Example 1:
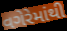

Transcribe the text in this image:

વગેરેમાંથી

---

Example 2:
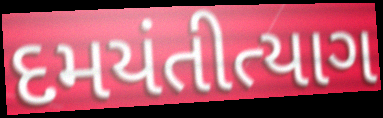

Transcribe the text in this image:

દમયંતીત્યાગ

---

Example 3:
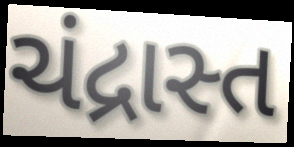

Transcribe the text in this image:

ચંદ્રાસ્ત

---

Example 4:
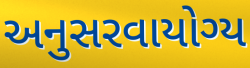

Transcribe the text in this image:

અનુસરવાયોગ્ય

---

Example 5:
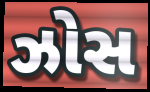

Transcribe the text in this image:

ઝોસ